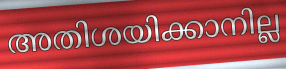
അതിശയിക്കാനില്ല